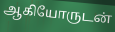
ஆகியோருடன்